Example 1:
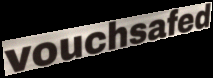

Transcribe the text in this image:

vouchsafed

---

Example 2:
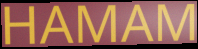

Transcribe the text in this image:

HAMAM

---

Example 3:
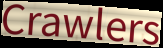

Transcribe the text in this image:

Crawlers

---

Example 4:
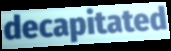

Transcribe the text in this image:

decapitated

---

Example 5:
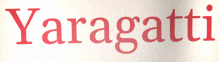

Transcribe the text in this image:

Yaragatti